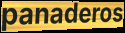
panaderos